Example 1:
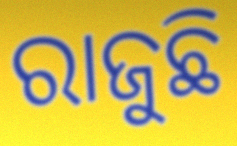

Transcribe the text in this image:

ରାଜୁଛି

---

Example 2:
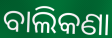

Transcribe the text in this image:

ବାଲିକଣା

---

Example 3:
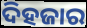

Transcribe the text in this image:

ଦିହଜାର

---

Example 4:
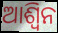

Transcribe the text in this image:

ଆଶ୍ୱିନ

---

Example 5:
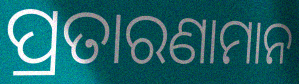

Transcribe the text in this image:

ପ୍ରତାରଣାମାନ